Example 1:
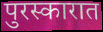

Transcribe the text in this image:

पुरस्कारात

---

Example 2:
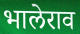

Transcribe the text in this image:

भालेराव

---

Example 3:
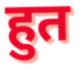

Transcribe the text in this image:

हुत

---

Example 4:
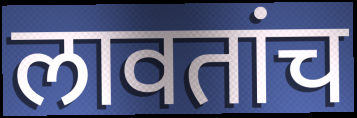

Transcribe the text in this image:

लावतांच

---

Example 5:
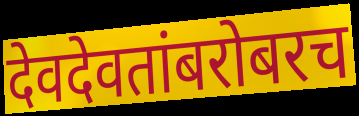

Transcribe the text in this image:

देवदेवतांबरोबरच